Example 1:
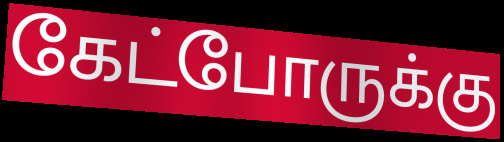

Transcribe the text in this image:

கேட்போருக்கு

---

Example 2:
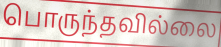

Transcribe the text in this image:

பொருந்தவில்லை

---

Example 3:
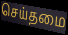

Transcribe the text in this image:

செய்தமை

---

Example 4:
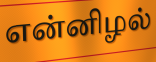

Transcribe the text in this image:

என்னிழல்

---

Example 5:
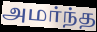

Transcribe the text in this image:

அமர்ந்த